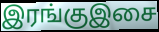
இரங்குஇசை